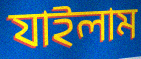
যাইলাম